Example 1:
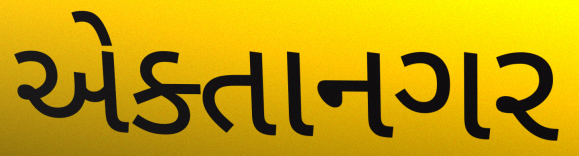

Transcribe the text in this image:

એક્તાનગર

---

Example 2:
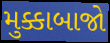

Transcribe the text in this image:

મુક્કાબાજો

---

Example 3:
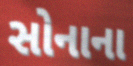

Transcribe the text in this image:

સોનાના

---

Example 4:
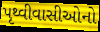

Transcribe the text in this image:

પૃથ્વીવાસીઓનો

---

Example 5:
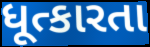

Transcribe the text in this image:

ધૂત્કારતા